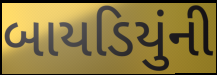
બાયડિયુંની